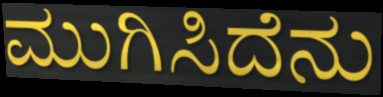
ಮುಗಿಸಿದೆನು